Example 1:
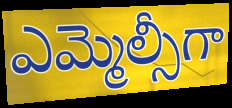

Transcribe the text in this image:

ఎమ్మెల్సీగా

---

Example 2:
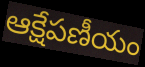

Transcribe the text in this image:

ఆక్షేపణీయం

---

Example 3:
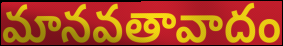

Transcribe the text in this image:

మానవతావాదం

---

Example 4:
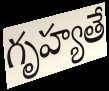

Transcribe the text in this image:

గృహ్యతే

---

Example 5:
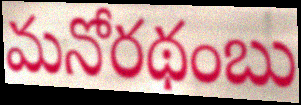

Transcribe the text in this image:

మనోరథంబు